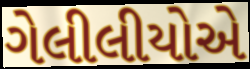
ગેલીલીયોએ